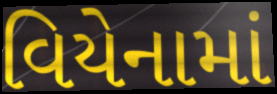
વિયેનામાં